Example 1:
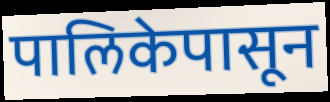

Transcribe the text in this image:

पालिकेपासून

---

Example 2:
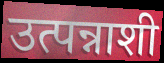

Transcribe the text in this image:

उत्पन्नाशी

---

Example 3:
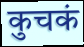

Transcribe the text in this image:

कुचकं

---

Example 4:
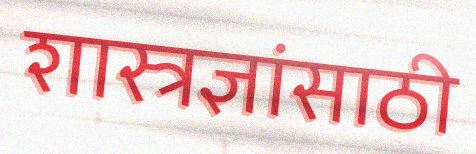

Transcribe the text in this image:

शास्त्रज्ञांसाठी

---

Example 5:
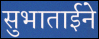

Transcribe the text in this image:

सुभाताईने